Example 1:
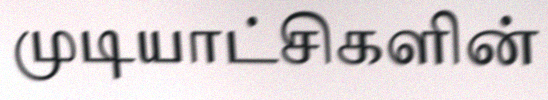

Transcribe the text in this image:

முடியாட்சிகளின்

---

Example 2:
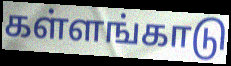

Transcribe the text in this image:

கள்ளங்காடு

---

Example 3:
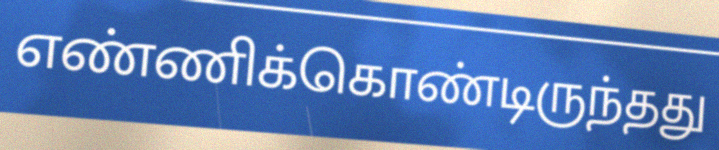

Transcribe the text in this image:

எண்ணிக்கொண்டிருந்தது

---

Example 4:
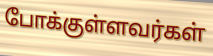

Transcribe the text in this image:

போக்குள்ளவர்கள்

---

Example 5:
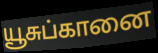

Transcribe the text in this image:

யூசுப்கானை